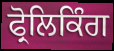
ਫ੍ਰੋਲਿਕਿੰਗ